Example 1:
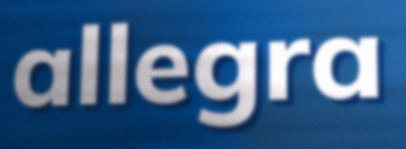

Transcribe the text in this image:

allegra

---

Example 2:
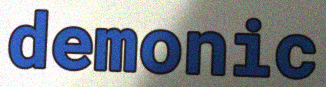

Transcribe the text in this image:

demonic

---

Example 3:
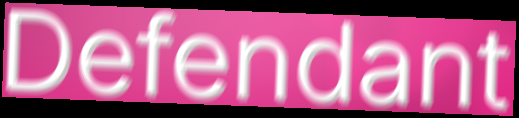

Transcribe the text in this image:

Defendant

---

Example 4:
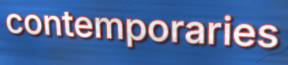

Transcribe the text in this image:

contemporaries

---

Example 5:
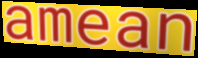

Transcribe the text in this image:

amean